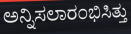
ಅನ್ನಿಸಲಾರಂಭಿಸಿತ್ತು